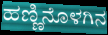
ಹಣ್ಣಿನೊಳಗಿನ